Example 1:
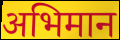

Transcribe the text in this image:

अभिमान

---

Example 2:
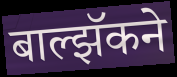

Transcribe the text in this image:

बाल्झॅकने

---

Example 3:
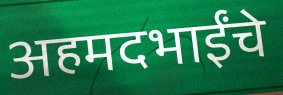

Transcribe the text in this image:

अहमदभाईंचे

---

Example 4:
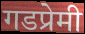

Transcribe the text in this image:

गडप्रेमी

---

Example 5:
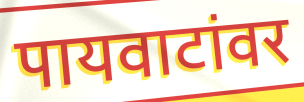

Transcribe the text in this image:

पायवाटांवर